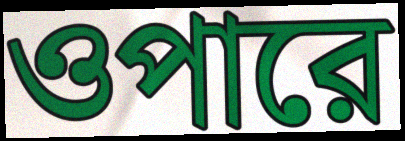
ওপারে